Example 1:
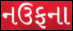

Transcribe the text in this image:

નઉફના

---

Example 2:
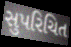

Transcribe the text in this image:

સુપરિચિત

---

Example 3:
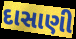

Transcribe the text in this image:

દાસાણી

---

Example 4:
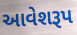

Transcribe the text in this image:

આવેશરૂપ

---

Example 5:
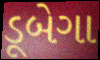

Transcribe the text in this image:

ડૂબેગા